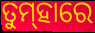
ତୁମ୍‌ହାରେ